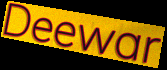
Deewar